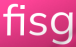
fisg